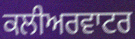
ਕਲੀਅਰਵਾਟਰ